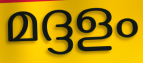
മദ്ദളം